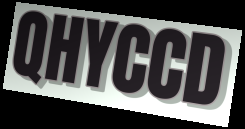
QHYCCD